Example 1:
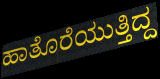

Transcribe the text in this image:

ಹಾತೊರೆಯುತ್ತಿದ್ದ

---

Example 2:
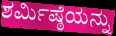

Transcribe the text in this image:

ಶರ್ಮಿಷ್ಠೆಯನ್ನು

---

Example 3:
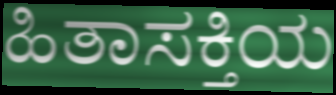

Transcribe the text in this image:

ಹಿತಾಸಕ್ತಿಯ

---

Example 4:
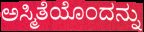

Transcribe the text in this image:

ಅಸ್ಮಿತೆಯೊಂದನ್ನು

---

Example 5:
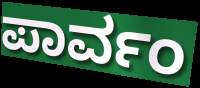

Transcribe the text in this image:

ಪಾರ್ವಂ